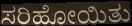
ಸರಿಹೋಯಿತು